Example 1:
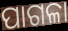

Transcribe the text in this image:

ପାଗଳା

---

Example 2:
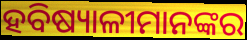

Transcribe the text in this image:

ହବିଷ୍ୟାଳୀମାନଙ୍କର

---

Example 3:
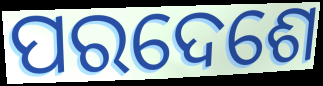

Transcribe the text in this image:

ପରଦେଶେ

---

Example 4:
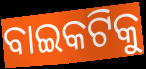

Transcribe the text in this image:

ବାଇକଟିକୁ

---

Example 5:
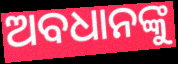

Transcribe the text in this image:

ଅବଧାନଙ୍କୁ